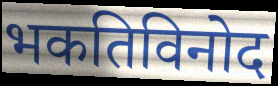
भकतिविनोद